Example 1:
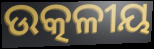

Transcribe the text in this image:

ଉତ୍କଳୀୟ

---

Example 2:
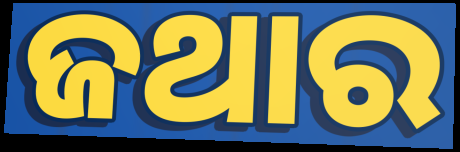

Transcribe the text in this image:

ଜଥାର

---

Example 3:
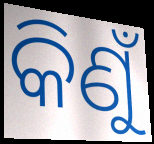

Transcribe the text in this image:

କିଣୁଁ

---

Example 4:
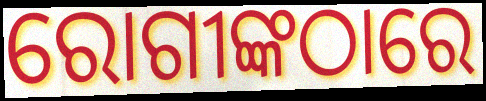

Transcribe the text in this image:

ରୋଗୀଙ୍କଠାରେ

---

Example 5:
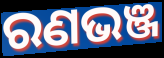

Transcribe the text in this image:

ରଣଭଞ୍ଜ